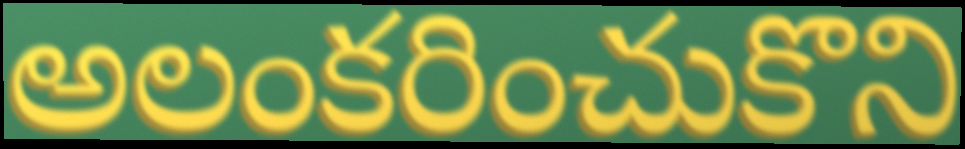
అలంకరించుకొని